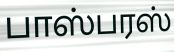
பாஸ்பரஸ்